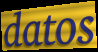
datos